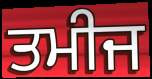
ਤਮੀਜ